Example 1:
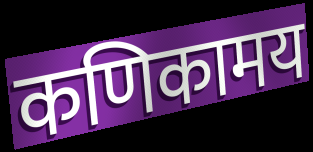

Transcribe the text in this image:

कणिकामय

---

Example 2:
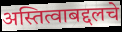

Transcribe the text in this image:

अस्तित्वाबद्दलचे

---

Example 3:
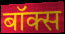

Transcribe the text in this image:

बॉक्‍स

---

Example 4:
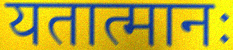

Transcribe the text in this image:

यतात्मानः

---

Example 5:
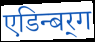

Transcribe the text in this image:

एडिन्बर्ग